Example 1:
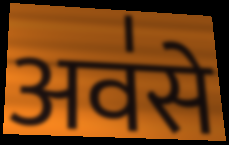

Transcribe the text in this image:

अव॑से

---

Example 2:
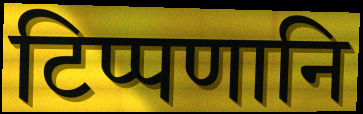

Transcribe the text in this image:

टिप्पणानि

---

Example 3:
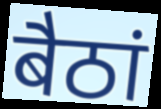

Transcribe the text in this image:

बैठां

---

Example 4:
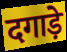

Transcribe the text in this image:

दगाड़े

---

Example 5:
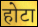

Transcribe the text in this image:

होटा